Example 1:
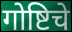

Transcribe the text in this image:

गोष्टिचे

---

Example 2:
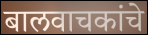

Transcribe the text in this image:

बालवाचकांचे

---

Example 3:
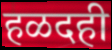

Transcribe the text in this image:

हळदही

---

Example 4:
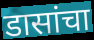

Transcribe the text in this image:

डासांचा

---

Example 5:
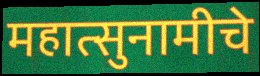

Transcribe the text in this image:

महात्सुनामीचे